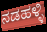
ನಡಹಳ್ಳಿ